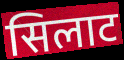
सिलाट